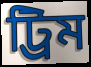
ট্ৰিম